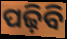
ପଢ଼ିବି